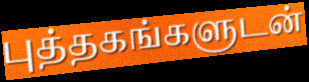
புத்தகங்களுடன்